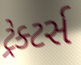
ટ્રેક્ટર્સ